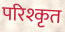
परिश्कृत